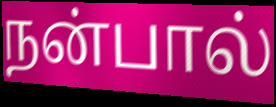
நன்பால்